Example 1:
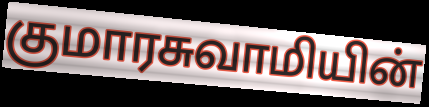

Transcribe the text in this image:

குமாரசுவாமியின்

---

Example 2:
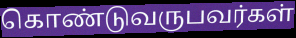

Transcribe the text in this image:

கொண்டுவருபவர்கள்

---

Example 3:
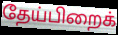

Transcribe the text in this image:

தேய்பிறைக்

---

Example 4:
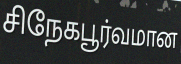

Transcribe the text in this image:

சிநேகபூர்வமான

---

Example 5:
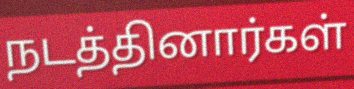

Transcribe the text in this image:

நடத்தினார்கள்